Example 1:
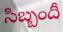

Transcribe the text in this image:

సిబ్బందీ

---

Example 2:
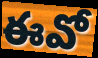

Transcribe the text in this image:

ఈవో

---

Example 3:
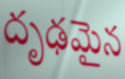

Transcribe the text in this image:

దృఢమైన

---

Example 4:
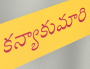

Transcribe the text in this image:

కన్యాకుమారి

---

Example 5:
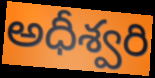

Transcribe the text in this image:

అధీశ్వరి